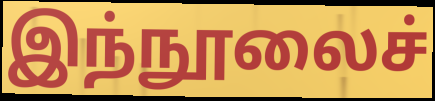
இந்நூலைச்